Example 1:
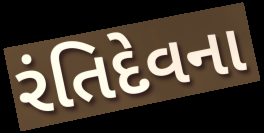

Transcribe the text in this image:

રંતિદેવના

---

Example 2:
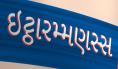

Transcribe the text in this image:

ઇટ્ઠારમ્મણસ્સ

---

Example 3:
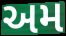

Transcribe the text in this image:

અમ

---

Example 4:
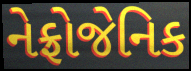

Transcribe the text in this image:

નેફ્રોજેનિક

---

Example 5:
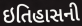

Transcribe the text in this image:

ઇતિહાસની